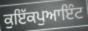
ਕੁਇੱਕਪੁਆਇੰਟ